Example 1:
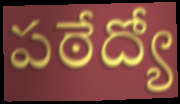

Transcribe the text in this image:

పఠేద్యో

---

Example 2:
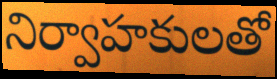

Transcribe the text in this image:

నిర్వాహకులతో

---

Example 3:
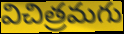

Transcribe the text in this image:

విచిత్రమగు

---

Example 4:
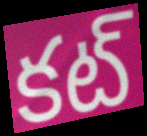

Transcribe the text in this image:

కట్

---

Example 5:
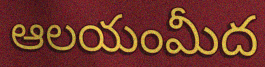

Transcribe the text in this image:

ఆలయంమీద